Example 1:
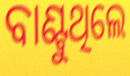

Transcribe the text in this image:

ବାଣ୍ଟୁଥିଲେ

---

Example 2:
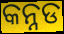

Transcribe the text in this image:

କନ୍ନଡ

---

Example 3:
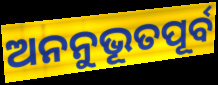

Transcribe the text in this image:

ଅନନୁଭୂତପୂର୍ବ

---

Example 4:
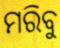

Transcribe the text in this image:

ମରିବୁ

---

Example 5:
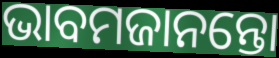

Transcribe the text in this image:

ଭାବମଜାନନ୍ତୋ